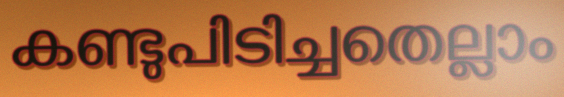
കണ്ടുപിടിച്ചതെല്ലാം